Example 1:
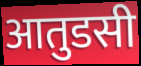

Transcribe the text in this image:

आतुडसी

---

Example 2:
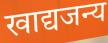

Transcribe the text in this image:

खाद्यजन्य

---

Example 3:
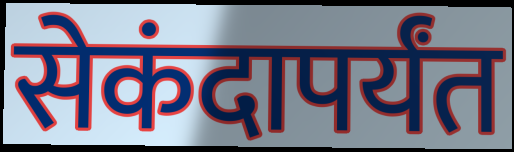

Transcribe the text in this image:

सेकंदापर्यंत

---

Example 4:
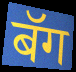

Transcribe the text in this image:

बॅग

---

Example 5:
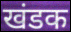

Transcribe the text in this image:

खंडक